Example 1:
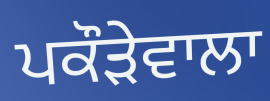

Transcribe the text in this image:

ਪਕੌੜੇਵਾਲਾ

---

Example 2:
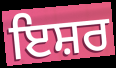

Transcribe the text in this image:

ਇਸ਼ਰ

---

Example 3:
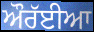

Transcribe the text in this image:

ਔਰੱਈਆ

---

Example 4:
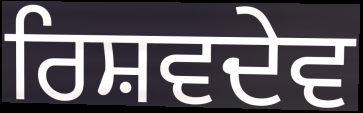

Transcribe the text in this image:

ਰਿਸ਼ਵਦੇਵ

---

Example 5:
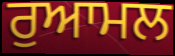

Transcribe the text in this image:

ਰੁਆਮਲ